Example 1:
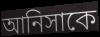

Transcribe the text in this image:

আনিসাকে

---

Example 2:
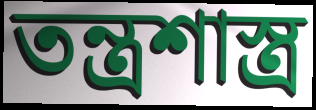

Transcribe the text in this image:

তন্ত্রশাস্ত্র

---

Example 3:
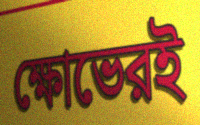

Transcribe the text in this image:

ক্ষোভেরই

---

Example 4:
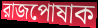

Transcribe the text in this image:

রাজপোষাক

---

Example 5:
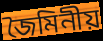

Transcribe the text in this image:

জৈমিনীয়